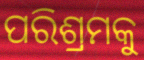
ପରିଶ୍ରମକୁ